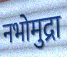
नभोमुद्रा